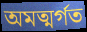
অমত্মর্গত